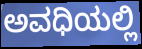
ಅವಧಿಯಲ್ಲಿ